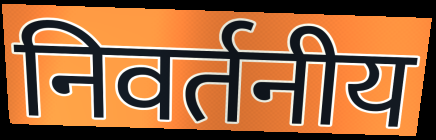
निवर्तनीय